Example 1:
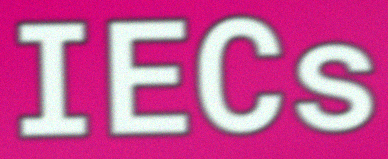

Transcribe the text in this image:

IECs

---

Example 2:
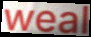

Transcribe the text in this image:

weal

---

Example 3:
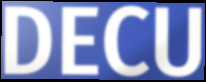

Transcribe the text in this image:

DECU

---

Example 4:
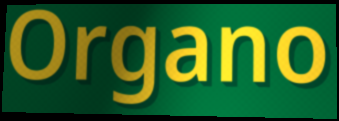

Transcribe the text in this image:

Organo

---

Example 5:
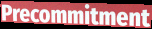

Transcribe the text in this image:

Precommitment